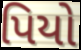
પિયો